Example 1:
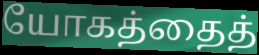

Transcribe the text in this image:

யோகத்தைத்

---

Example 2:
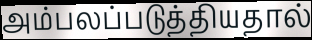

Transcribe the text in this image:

அம்பலப்படுத்தியதால்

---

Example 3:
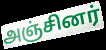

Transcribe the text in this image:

அஞ்சினர்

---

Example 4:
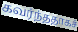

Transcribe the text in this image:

கவர்ந்ததாகச்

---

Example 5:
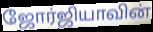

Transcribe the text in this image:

ஜோர்ஜியாவின்